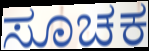
ಸೂಚಕ